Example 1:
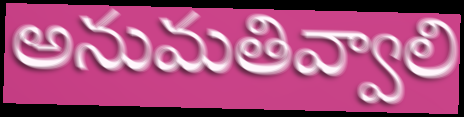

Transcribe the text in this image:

అనుమతివ్వాలి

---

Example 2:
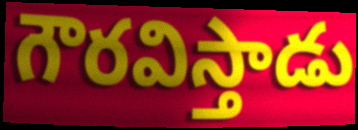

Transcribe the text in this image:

గౌరవిస్తాడు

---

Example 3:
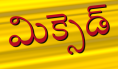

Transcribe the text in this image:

మిక్సెడ్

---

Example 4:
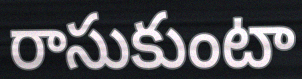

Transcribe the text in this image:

రాసుకుంటా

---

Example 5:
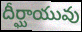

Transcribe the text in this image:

దీర్ఘాయువు